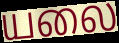
யலை